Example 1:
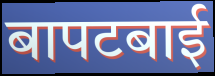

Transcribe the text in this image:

बापटबाई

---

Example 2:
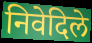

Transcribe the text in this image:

निवेदिले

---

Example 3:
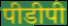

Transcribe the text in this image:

पीडीपी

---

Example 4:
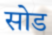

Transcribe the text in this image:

सोड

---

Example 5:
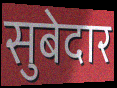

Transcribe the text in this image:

सुबेदार